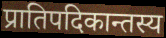
प्रातिपदिकान्तस्य